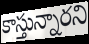
కాస్తున్నారని